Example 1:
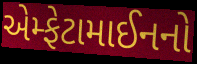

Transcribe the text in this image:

એમ્ફેટામાઈનનો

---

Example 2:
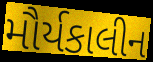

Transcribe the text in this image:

મૌર્યકાલીન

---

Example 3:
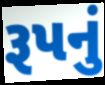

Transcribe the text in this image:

રૂપનું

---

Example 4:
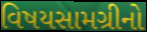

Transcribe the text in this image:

વિષયસામગ્રીનો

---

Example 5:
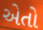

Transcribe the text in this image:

એતો